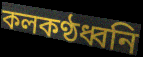
কলকণ্ঠধ্বনি